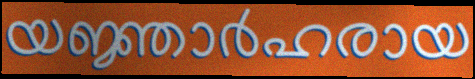
യജ്ഞാർഹരായ